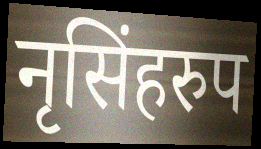
नृसिंहरुप